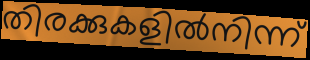
തിരക്കുകളിൽനിന്ന്